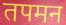
तपमन